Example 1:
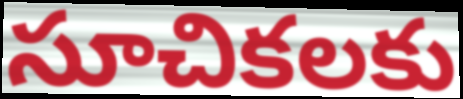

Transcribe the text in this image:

సూచికలకు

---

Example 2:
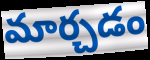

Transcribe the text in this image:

మార్చడం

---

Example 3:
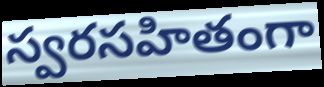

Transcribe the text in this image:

స్వరసహితంగా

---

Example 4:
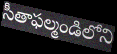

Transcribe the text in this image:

సీతాఫల్మండిలోని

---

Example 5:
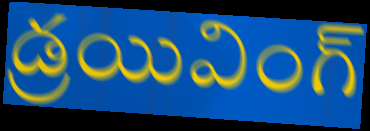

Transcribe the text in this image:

డ్రయివింగ్